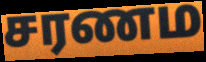
சரணம